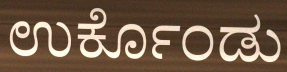
ಉರ್ಕೊಂಡು